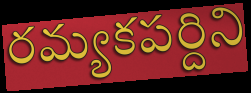
రమ్యకపర్దిని